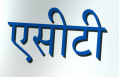
एसीटी